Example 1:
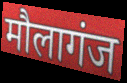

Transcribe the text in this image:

मौलागंज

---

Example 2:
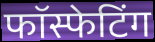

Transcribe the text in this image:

फॉस्फेटिंग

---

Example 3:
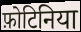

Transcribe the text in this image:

फ़ोटिनिया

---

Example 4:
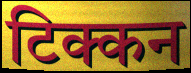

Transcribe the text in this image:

टिक्कन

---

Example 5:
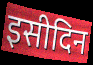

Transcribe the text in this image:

इसीदिन